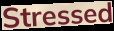
Stressed